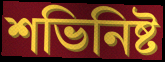
শভিনিষ্ট